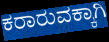
ಕರಾರುವಕ್ಕಾಗಿ